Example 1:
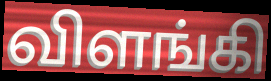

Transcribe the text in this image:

விளங்கி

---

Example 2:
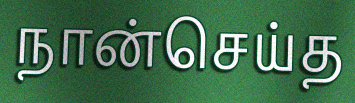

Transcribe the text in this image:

நான்செய்த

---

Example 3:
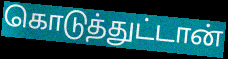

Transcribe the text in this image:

கொடுத்துட்டான்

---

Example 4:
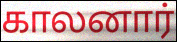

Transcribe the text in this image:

காலனார்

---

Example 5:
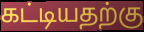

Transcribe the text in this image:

கட்டியதற்கு